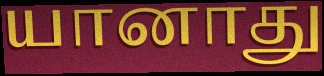
யானாது